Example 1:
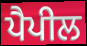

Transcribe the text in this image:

ਪੈਪੀਲ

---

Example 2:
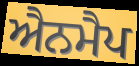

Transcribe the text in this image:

ਐਨਮੈਪ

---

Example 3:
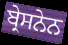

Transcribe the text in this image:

ਬ੍ਰੇਸਨੇਨ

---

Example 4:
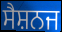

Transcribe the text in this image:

ਸੈਸ਼ਨਜ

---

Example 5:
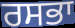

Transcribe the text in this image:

ਰਸਭਾ